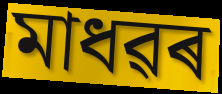
মাধৱৰ